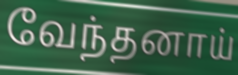
வேந்தனாய்